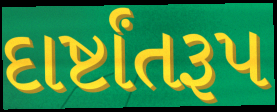
દાર્ષ્ટાંતરૂપ